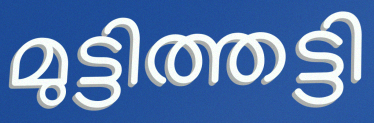
മുട്ടിത്തട്ടി